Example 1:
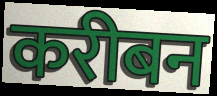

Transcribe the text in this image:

करीबन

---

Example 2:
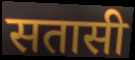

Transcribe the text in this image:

सतासी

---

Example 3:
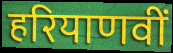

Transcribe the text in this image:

हरियाणवीं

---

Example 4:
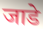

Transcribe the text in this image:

जाडे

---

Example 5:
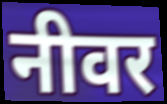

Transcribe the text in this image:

नीवर